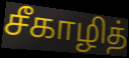
சீகாழித்